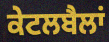
ਕੇਟਲਬੈਲਾਂ